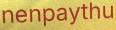
nenpaythu